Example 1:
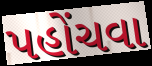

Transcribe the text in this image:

પહોંચવા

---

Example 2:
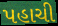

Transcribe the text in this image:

પહાચી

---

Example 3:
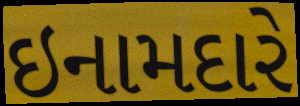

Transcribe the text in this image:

ઇનામદારે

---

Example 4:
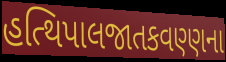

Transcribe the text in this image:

હત્થિપાલજાતકવણ્ણના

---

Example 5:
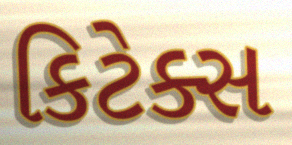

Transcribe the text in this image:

કિટેક્સ